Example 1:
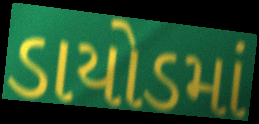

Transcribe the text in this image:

ડાયોડમાં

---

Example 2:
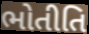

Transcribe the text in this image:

ભોતીતિ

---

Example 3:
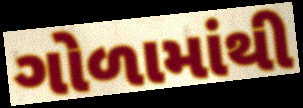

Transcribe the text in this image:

ગોળામાંથી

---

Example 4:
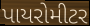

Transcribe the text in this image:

પાયરોમીટર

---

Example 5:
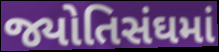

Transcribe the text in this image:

જ્યોતિસંઘમાં